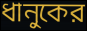
ধানুকের